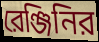
রেঞ্জিনির